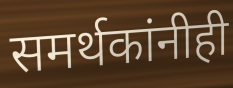
समर्थकांनीही